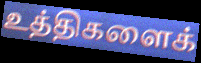
உத்திகளைக்